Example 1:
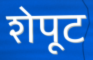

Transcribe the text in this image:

शेपूट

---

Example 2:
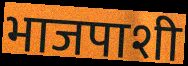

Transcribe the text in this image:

भाजपाशी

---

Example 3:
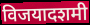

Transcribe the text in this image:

विजयादशमी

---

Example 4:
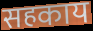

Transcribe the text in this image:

सहकाय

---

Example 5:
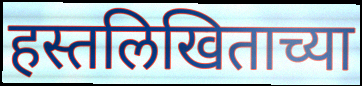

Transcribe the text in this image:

हस्तलिखिताच्या